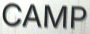
CAMP